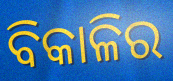
ବିକାଳିର